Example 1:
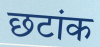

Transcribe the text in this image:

छटांक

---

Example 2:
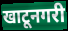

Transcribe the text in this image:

खाटूनगरी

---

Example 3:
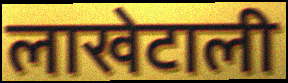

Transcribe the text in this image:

लाखेटाली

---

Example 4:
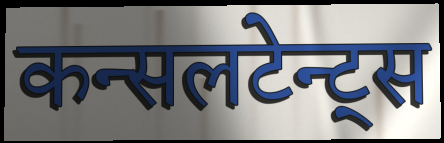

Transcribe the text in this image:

कन्सलटेन्ट्स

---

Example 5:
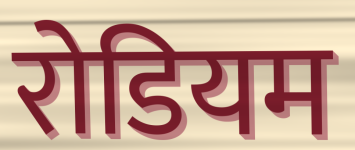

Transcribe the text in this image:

रोडियम